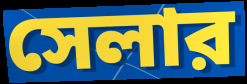
সেলার